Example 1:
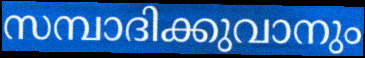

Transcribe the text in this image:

സമ്പാദിക്കുവാനും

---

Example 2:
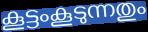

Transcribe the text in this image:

കൂട്ടംകൂടുന്നതും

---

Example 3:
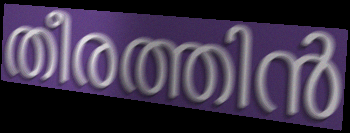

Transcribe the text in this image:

തീരത്തിൻ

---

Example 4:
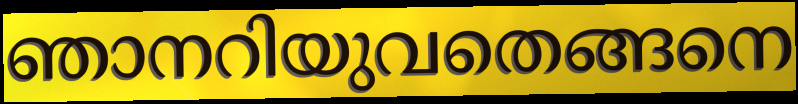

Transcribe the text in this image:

ഞാനറിയുവതെങ്ങനെ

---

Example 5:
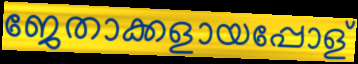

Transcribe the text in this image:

ജേതാക്കളായപ്പോള്